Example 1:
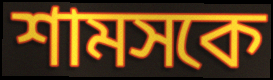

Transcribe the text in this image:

শামসকে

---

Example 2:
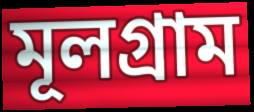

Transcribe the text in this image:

মূলগ্রাম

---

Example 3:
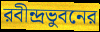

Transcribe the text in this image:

রবীন্দ্রভুবনের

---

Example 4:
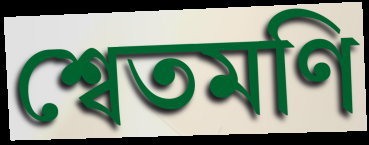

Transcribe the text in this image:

শ্বেতমণি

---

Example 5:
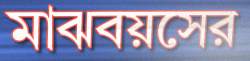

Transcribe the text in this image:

মাঝবয়সের